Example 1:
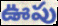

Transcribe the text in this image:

ఊపు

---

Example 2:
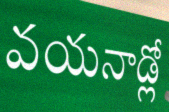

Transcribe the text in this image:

వయనాడ్లో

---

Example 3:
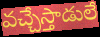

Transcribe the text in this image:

వచ్చేస్తాడులే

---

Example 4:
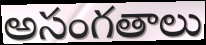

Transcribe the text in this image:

అసంగతాలు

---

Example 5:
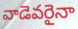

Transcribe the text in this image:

వాడెవరైనా